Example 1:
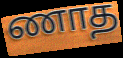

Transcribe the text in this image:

ணாத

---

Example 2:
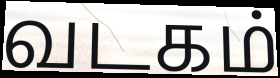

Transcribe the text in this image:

வடகம்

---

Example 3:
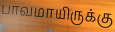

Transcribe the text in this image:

பாவமாயிருக்கு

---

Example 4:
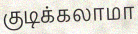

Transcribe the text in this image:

குடிக்கலாமா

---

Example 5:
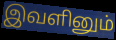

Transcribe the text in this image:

இவளினும்